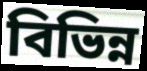
বিভিন্ন